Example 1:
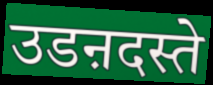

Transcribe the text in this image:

उडऩदस्ते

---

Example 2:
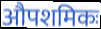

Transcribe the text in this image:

औपशमिकः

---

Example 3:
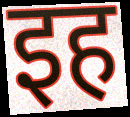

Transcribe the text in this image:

इह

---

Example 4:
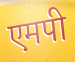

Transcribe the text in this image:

एमपी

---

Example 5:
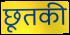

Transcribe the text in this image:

छूतकी